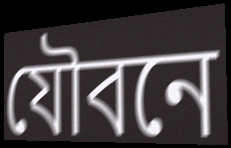
যৌবনে